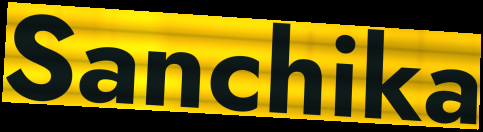
Sanchika